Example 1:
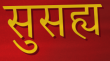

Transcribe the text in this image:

सुसह्य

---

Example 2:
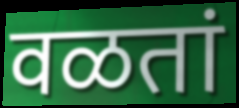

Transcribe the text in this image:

वळतां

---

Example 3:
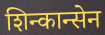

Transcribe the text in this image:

शिन्कान्सेन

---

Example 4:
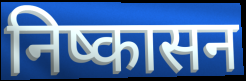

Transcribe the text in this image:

निष्कासन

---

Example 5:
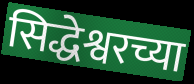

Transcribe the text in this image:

सिद्धेश्वरच्या